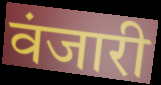
वंजारी